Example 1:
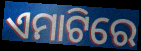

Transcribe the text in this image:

ଏମାଟିରେ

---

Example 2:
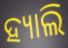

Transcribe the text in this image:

ହ୍ୟାଲି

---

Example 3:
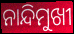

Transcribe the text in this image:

ନାନ୍ଦିମୁଖୀ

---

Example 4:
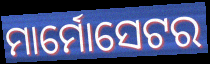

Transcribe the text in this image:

ମାର୍ମୋସେଟର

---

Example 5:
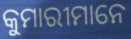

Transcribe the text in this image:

କୁମାରୀମାନେ